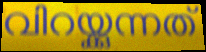
വിറയ്ക്കുന്നത്